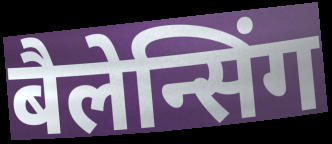
बैलेन्सिंग